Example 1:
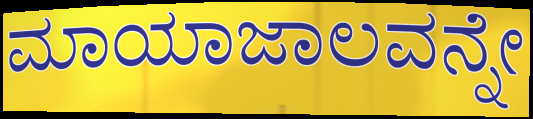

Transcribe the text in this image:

ಮಾಯಾಜಾಲವನ್ನೇ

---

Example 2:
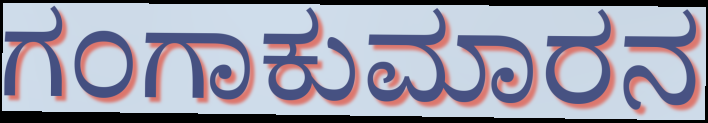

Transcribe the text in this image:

ಗಂಗಾಕುಮಾರನ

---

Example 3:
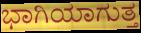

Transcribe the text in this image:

ಭಾಗಿಯಾಗುತ್ತ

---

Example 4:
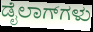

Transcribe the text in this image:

ಡೈಲಾಗ್‌ಗಳು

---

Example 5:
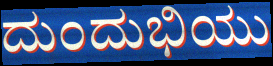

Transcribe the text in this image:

ದುಂದುಭಿಯು